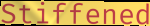
Stiffened